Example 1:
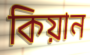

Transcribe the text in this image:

কিয়ান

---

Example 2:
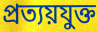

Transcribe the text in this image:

প্রত্যয়যুক্ত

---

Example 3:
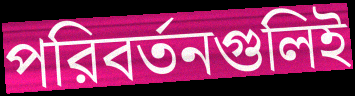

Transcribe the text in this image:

পরিবর্তনগুলিই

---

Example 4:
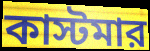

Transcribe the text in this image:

কাস্টমার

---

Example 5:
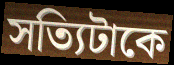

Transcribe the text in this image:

সত্যিটাকে